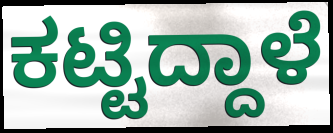
ಕಟ್ಟಿದ್ದಾಳೆ